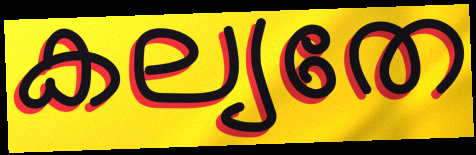
കല്യതേ